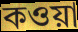
কওয়া